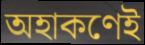
অহাকণেই